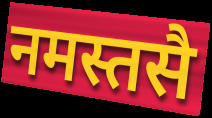
नमस्तसै